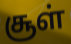
சூள்